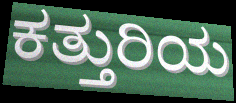
ಕತ್ತುರಿಯ